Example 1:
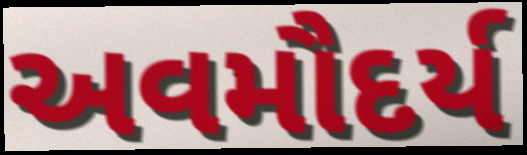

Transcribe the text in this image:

અવમૌદર્ય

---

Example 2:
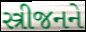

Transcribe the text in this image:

સ્ત્રીજનને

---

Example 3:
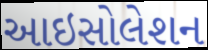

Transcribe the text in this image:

આઇસોલેશન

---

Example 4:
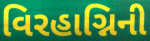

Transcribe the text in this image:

વિરહાગ્નિની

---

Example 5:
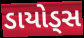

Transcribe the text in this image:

ડાયોડ્સ